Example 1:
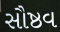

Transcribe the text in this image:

સૌષ્ઠવ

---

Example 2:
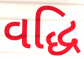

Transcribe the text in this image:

વદ્ધિ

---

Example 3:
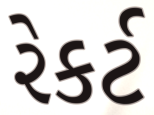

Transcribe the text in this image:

રેકર્ટ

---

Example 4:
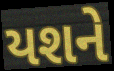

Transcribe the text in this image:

યશને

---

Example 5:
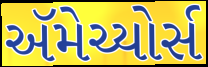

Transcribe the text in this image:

ઍમેચ્યોર્સ